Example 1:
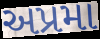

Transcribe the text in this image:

અપ્રમા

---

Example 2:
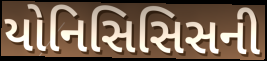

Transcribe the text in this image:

યોનિસિસિસની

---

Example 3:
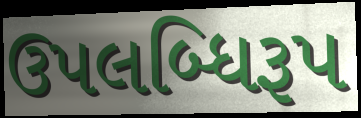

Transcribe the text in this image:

ઉપલબ્ધિરૂપ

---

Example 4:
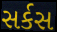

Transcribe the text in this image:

સર્કસ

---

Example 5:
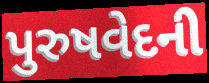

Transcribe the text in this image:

પુરુષવેદની